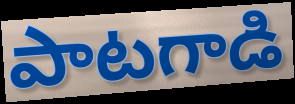
పాటగాడి